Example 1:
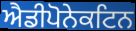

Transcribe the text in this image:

ਐਡੀਪੋਨੇਕਟਿਨ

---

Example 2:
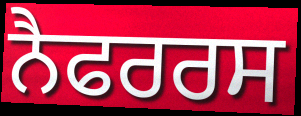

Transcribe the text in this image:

ਨੈਫਰਰਸ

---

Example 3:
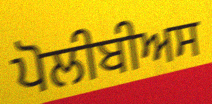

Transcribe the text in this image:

ਪੋਲੀਬੀਅਸ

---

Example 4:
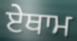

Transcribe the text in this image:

ਏਥਾਮ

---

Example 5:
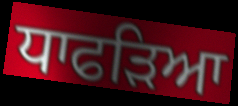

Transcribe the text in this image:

ਧਾਫੜਿਆ